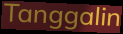
Tanggalin